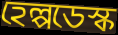
হেল্পডেস্ক